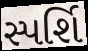
સ્પર્શિ